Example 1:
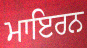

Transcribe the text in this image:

ਮਾਇਰਨ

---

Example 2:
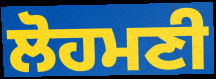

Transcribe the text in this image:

ਲੋਹਮਣੀ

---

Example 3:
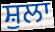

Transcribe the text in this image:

ਸ਼ੁਲਾ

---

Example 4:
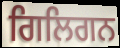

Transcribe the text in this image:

ਗਿਲਿਗਨ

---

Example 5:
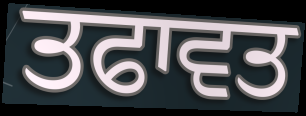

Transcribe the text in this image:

ਤਫਾਵਤ